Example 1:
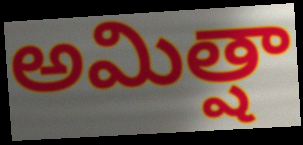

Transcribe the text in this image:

అమిత్షా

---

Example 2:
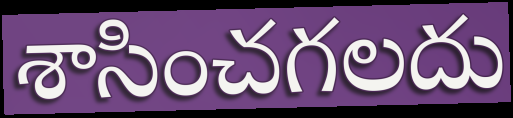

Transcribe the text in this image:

శాసించగలదు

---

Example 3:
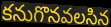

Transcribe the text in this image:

కనుగొనవలసిన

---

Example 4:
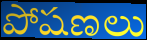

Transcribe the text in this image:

పోషణలు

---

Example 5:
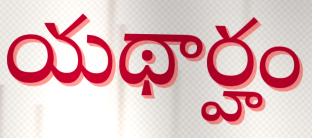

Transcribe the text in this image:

యథార్హం